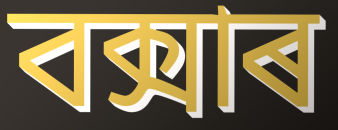
বক্সাৰ